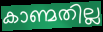
കാണ്മതില്ല